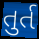
તુર્ત